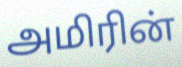
அமிரின்